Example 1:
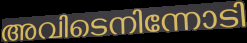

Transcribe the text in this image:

അവിടെനിന്നോടി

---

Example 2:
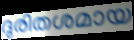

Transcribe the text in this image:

ദുരിതശമായ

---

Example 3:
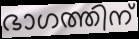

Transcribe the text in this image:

ഭാഗത്തിന്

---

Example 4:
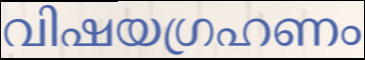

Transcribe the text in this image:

വിഷയഗ്രഹണം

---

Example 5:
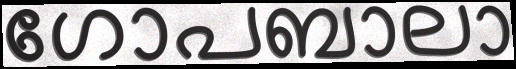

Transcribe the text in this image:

ഗോപബാലാ